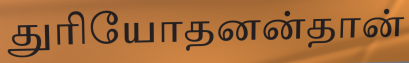
துரியோதனன்தான்